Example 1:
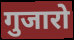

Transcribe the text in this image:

गुजारो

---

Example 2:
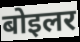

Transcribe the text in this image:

बोइलर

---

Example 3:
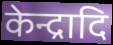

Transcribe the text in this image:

केन्द्रादि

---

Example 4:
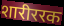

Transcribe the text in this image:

शारीररक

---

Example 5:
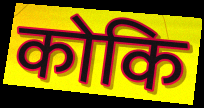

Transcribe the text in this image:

कोकि